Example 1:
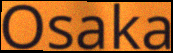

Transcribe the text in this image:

Osaka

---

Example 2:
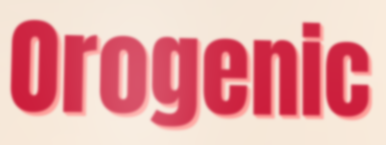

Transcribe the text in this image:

Orogenic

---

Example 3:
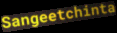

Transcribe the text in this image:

Sangeetchinta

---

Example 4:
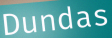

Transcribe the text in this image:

Dundas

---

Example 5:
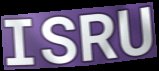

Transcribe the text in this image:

ISRU